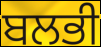
ਬਲਭੀ